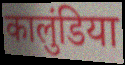
कालुंडिया